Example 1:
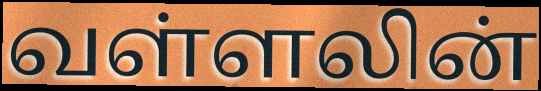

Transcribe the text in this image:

வள்ளலின்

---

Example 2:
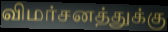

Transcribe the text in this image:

விமர்சனத்துக்கு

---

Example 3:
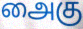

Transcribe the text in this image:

அைகு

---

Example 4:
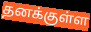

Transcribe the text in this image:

தனக்குள்ள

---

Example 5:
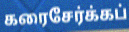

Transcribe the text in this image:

கரைசேர்க்கப்